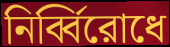
নির্ব্বিরোধে